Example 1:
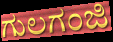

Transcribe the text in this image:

ಗುಲಗಂಜಿ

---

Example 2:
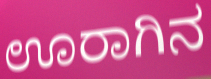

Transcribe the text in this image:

ಊರಾಗಿನ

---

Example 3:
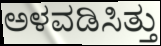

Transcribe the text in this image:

ಅಳವಡಿಸಿತ್ತು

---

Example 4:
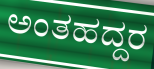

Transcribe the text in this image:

ಅಂತಹದ್ದರ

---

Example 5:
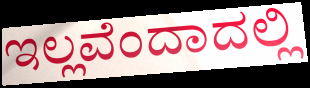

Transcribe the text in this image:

ಇಲ್ಲವೆಂದಾದಲ್ಲಿ